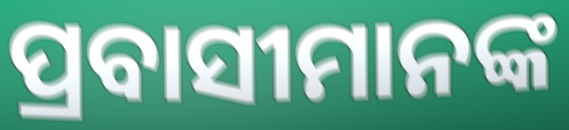
ପ୍ରବାସୀମାନଙ୍କ